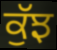
ਕੁੱਝ